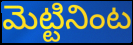
మెట్టినింట